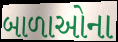
બાળાઓના